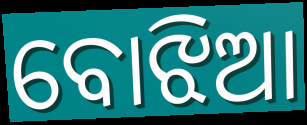
ବୋଝିଆ